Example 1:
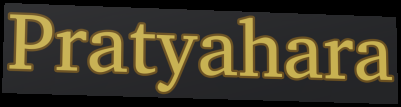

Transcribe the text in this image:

Pratyahara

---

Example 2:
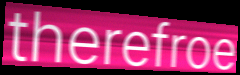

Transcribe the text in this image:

therefroe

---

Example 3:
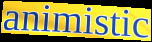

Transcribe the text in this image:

animistic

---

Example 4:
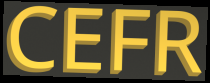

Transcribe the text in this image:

CEFR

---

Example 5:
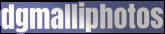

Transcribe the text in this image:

dgmalliphotos